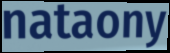
nataony